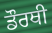
ਡੌਰਥੀ